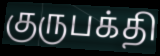
குருபக்தி